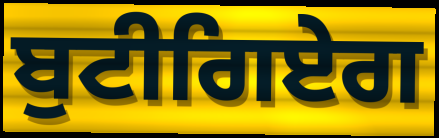
ਬੁਟੀਗਿਏਗ